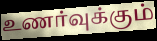
உணர்வுக்கும்